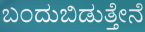
ಬಂದುಬಿಡುತ್ತೇನೆ